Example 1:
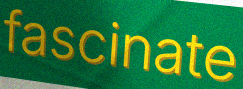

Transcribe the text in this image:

fascinate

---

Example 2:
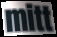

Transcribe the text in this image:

mitt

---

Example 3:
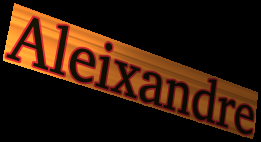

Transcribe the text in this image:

Aleixandre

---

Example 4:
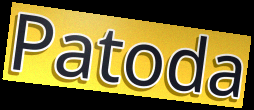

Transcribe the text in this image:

Patoda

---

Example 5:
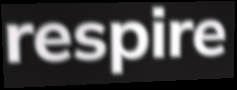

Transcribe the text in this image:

respire